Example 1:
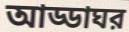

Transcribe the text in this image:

আড্ডাঘর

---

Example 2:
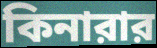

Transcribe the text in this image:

কিনারার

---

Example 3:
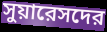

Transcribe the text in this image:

সুয়ারেসদের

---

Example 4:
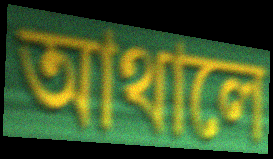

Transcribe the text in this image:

আথালে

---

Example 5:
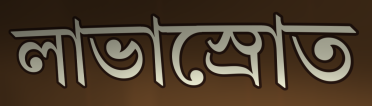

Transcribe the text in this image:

লাভাস্রোত